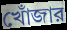
খোঁজার